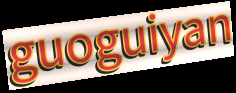
guoguiyan